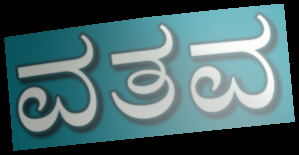
ವತವ